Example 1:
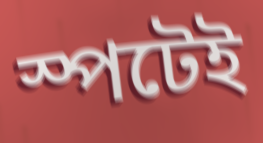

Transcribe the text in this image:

স্পটেই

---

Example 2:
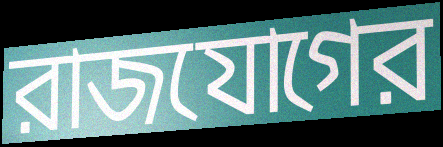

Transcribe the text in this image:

রাজযোগের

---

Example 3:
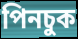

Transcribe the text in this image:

পিনচুক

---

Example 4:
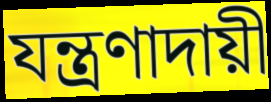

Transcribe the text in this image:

যন্ত্রণাদায়ী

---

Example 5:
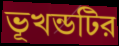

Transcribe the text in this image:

ভূখন্ডটির